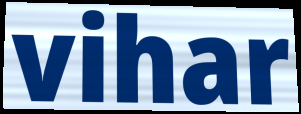
vihar